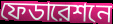
ফেডারেশনে